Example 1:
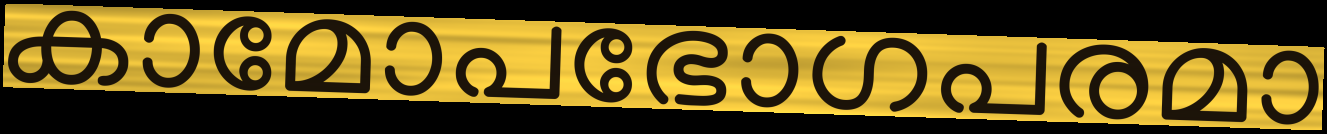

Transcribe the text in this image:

കാമോപഭോഗപരമാ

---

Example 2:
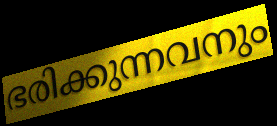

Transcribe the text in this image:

ഭരിക്കുന്നവനും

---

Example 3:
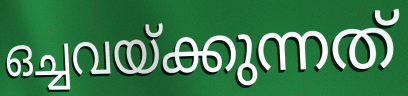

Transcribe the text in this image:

ഒച്ചവയ്ക്കുന്നത്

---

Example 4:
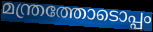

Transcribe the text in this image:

മന്ത്രത്തോടൊപ്പം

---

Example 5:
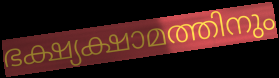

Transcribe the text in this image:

ഭക്ഷ്യക്ഷാമത്തിനും